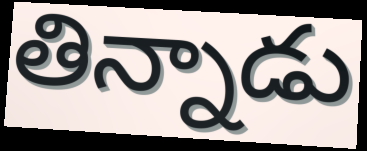
తిన్నాడు